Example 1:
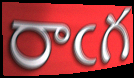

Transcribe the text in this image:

రాఁగ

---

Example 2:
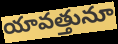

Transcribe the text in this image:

యావత్తునూ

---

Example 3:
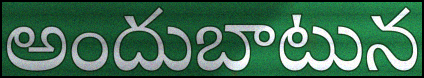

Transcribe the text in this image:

అందుబాటున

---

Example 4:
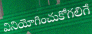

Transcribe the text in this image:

వినియోగించుకోగలిగే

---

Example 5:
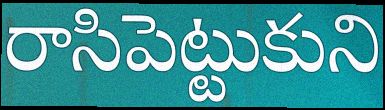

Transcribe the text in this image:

రాసిపెట్టుకుని